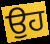
ਉਹ